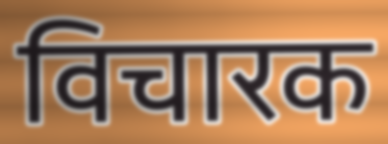
विचारक